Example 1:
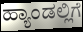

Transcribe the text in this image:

ಹ್ಯಾಂಡಲ್ಲಿಗೆ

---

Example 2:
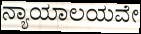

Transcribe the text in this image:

ನ್ಯಾಯಾಲಯವೇ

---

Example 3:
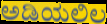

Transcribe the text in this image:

ಅಡಿಯಲಿಲ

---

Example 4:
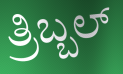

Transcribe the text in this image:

ತ್ರಿಬ್ಬಲ್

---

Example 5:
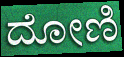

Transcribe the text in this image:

ದೋಣಿ